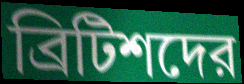
ব্রিটিশদের